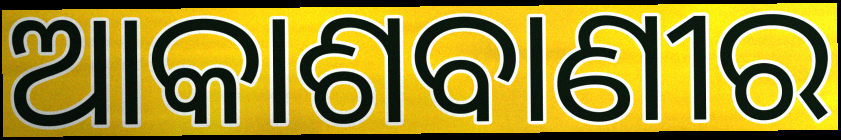
ଆକାଶବାଣୀର